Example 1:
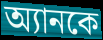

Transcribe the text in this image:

অ্যানকে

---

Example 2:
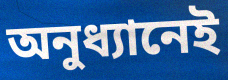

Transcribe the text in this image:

অনুধ্যানেই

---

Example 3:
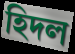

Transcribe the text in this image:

হিদল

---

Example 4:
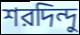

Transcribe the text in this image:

শরদিন্দু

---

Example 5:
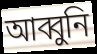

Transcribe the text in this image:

আব্বুনি